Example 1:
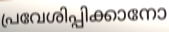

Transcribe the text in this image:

പ്രവേശിപ്പിക്കാനോ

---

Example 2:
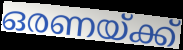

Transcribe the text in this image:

ഒരണയ്ക്ക്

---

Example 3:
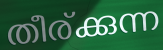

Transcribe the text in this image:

തീര്ക്കുന്ന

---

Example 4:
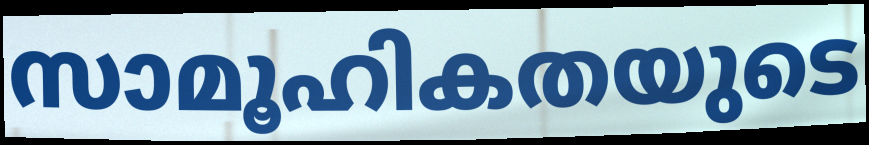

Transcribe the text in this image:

സാമൂഹികതയുടെ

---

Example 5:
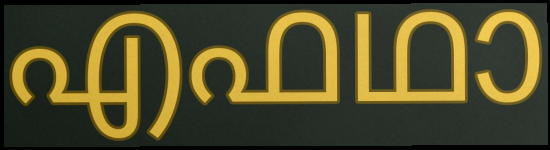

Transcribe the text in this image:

എഫഥാ